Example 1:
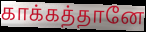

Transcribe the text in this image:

காக்கத்தானே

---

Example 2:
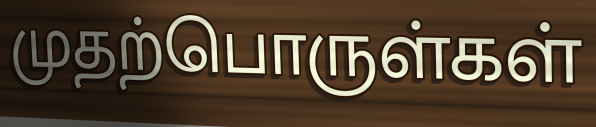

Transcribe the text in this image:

முதற்பொருள்கள்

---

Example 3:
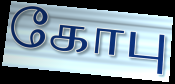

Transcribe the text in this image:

கோபு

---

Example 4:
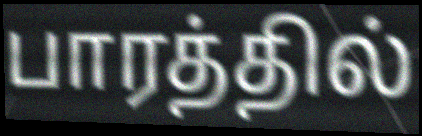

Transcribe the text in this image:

பாரத்தில்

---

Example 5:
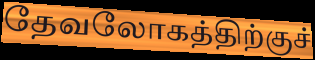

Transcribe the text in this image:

தேவலோகத்திற்குச்